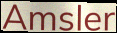
Amsler